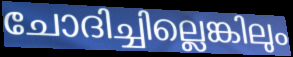
ചോദിച്ചില്ലെങ്കിലും